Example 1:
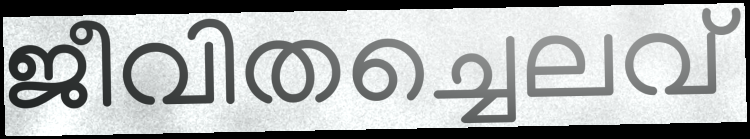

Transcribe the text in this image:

ജീവിതച്ചെലവ്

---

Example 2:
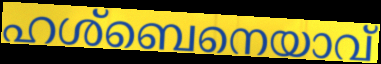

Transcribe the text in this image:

ഹശ്ബെനെയാവ്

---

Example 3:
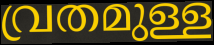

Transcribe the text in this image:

വ്രതമുള്ള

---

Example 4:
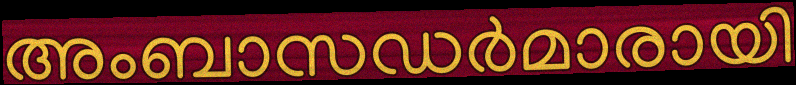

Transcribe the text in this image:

അംബാസഡർമാരായി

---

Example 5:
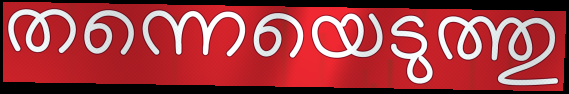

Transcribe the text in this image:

തന്നെയെടുത്തു